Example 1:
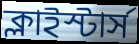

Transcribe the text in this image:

ক্লাইস্টার্স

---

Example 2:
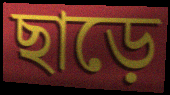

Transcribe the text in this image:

ছাড়ে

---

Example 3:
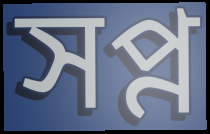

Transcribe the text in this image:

সপ্ন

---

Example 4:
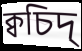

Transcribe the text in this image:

ক্বচিদ্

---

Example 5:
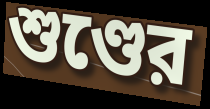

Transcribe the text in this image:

শুণ্ডের